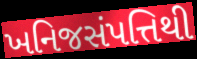
ખનિજસંપત્તિથી